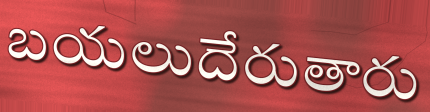
బయలుదేరుతారు